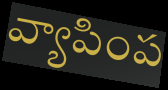
వ్యాపింప